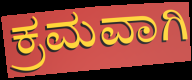
ಕ್ರಮವಾಗಿ